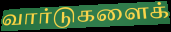
வார்டுகளைக்